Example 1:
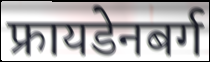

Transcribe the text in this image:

फ्रायडेनबर्ग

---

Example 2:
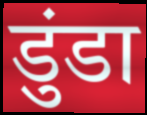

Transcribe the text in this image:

डुंडा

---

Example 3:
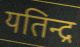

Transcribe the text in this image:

यतिन्द्र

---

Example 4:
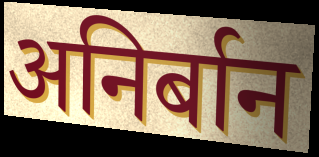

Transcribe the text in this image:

अनिर्बान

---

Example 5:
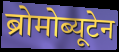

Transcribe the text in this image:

ब्रोमोब्यूटेन